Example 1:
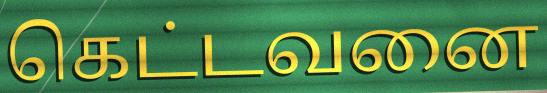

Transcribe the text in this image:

கெட்டவனை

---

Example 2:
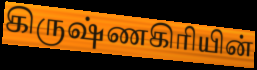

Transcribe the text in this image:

கிருஷ்ணகிரியின்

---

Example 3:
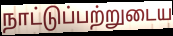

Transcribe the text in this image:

நாட்டுப்பற்றுடைய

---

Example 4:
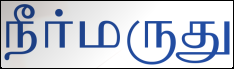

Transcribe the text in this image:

நீர்மருது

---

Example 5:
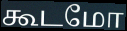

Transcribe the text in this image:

கூடமோ